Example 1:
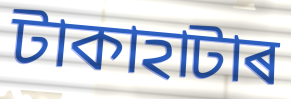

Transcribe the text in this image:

টাকাহাটাৰ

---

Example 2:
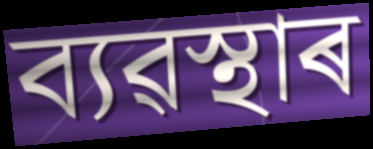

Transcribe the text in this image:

ব্যৱস্থাৰ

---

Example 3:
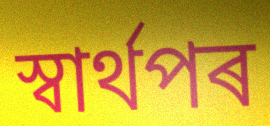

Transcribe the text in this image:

স্বাৰ্থপৰ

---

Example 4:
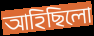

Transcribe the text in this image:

আহিছিলো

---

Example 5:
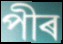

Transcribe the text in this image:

পীৰ